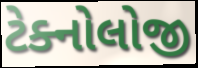
ટેક્નોલોજી